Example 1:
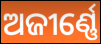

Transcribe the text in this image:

ଅଜୀର୍ଣ୍ଣେ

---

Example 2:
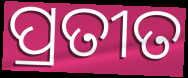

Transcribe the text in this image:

ପ୍ରତୀତ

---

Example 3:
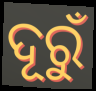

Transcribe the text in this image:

ଦୂରୁଁ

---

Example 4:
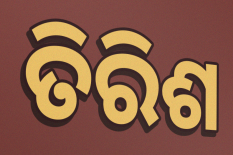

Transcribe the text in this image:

ତିରିଶ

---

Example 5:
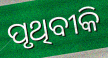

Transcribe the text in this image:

ପୃଥିବୀକି